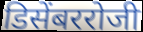
डिसेंबररोजी